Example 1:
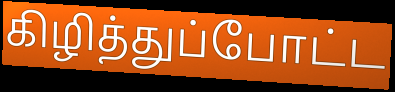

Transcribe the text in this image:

கிழித்துப்போட்ட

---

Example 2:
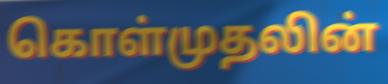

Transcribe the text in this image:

கொள்முதலின்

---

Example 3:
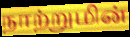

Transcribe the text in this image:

நாற்றுமின்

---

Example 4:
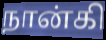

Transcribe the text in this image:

நான்கி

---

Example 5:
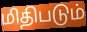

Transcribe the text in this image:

மிதிபடும்